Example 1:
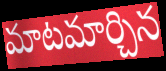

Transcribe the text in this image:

మాటమార్చిన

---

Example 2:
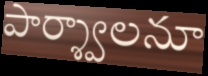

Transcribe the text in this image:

పార్శ్వాలనూ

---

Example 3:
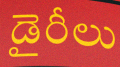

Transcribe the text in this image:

డైరీలు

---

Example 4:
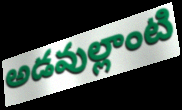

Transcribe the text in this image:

అడవుల్లాంటి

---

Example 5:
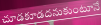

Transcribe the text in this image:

చూడకూడదనుకుంటూనే